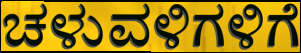
ಚಳುವಳಿಗಳಿಗೆ